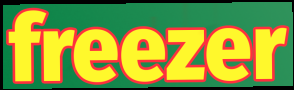
freezer